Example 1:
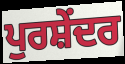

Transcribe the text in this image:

ਪੁਰਸ਼ੇਂਦਰ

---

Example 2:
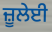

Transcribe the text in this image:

ਜ਼ੂਲੇਈ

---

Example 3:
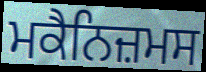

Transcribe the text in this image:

ਮਕੈਨਿਜ਼ਮਸ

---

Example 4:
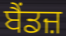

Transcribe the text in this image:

ਬੈਂਡਜ਼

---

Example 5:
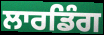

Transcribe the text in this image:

ਲਾਰਡਿੰਗ